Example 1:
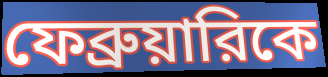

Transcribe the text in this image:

ফেব্রুয়ারিকে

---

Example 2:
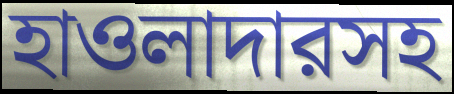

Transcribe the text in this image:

হাওলাদারসহ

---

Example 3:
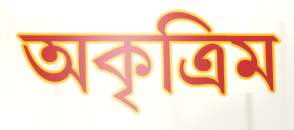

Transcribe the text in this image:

অকৃত্রিম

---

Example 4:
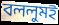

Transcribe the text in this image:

বললুমই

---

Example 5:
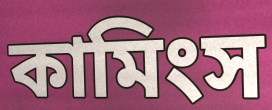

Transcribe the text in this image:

কামিংস